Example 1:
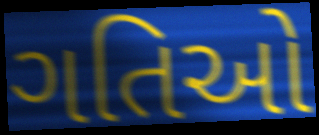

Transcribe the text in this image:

ગતિઓ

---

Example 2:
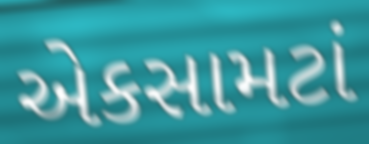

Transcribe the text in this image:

એકસામટાં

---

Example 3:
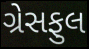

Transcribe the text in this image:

ગ્રેસફુલ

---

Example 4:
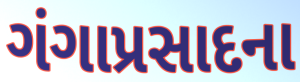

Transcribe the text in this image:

ગંગાપ્રસાદના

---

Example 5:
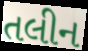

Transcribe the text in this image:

તલીન